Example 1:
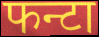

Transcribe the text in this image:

फन्टा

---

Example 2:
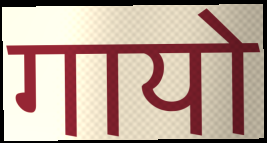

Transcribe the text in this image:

गायो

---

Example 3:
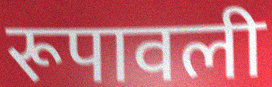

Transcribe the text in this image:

रूपावली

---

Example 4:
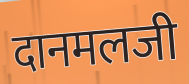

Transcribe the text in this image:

दानमलजी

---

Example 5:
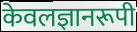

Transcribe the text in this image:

केवलज्ञानरूपी